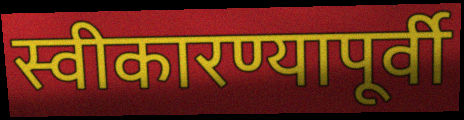
स्वीकारण्यापूर्वी